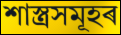
শাস্ত্ৰসমূহৰ